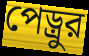
পেড়্রুর